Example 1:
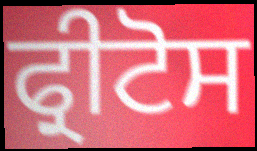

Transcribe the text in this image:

ਫ੍ਰੀਟੋਸ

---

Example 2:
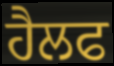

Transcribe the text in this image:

ਹੈਲਫ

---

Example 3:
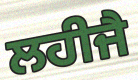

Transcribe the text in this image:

ਲਹੀਜੈ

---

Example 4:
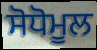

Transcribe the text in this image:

ਸੋਧੋਮੂਲ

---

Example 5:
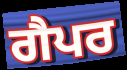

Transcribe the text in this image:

ਗੈਪਰ